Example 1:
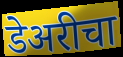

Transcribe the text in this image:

डेअरीचा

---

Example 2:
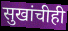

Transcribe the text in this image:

सुखांचीही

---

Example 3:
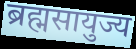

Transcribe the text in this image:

ब्रह्मसायुज्य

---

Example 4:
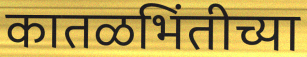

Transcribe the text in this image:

कातळभिंतीच्या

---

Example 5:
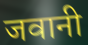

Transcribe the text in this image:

जवानी